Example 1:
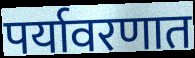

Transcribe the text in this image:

पर्यावरणात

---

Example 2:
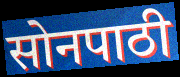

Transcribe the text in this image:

सोनपाठी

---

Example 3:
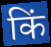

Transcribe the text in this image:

किं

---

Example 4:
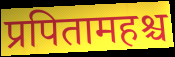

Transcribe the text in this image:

प्रपितामहश्च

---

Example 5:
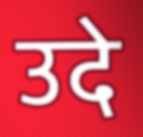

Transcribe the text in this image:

उदे